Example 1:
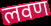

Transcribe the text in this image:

लवण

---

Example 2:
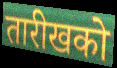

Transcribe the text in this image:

तारीखको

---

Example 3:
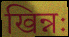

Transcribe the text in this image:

खिन्नः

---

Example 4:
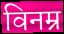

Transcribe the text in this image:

विनम्र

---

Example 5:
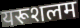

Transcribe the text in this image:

यरूशलम